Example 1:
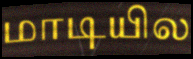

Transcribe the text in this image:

மாடியில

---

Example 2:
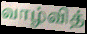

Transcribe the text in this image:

வாழ்வித்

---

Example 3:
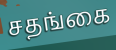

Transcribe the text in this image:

சதங்கை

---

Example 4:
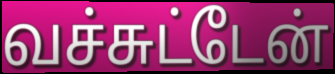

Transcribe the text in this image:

வச்சுட்டேன்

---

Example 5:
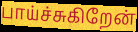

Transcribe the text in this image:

பாய்ச்சுகிறேன்